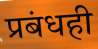
प्रबंधही